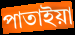
পাতাইয়া